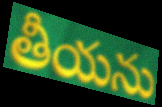
తీయను